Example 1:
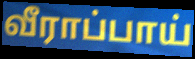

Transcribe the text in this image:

வீராப்பாய்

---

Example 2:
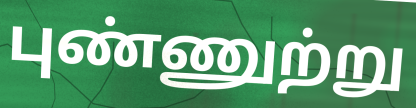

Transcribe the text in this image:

புண்ணுற்று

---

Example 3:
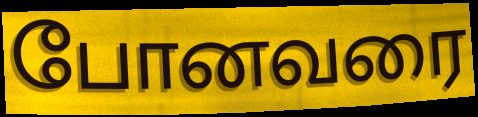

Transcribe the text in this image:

போனவரை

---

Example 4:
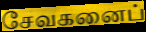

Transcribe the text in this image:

சேவகனைப்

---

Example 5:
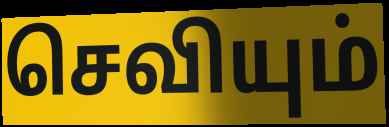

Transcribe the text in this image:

செவியும்